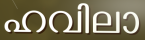
ഹവിലാ